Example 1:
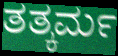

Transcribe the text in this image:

ತತ್ಕರ್ಮ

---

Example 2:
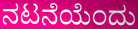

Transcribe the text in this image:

ನಟನೆಯೆಂದು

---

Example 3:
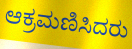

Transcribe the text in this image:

ಆಕ್ರಮಣಿಸಿದರು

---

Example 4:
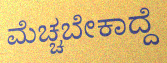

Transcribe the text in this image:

ಮೆಚ್ಚಬೇಕಾದ್ದೆ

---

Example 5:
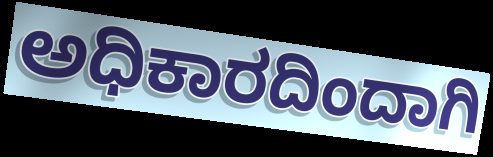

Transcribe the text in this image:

ಅಧಿಕಾರದಿಂದಾಗಿ